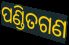
ପଣ୍ଡିତଗଣ